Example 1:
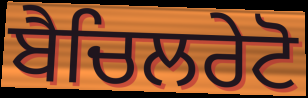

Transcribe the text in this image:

ਬੈਚਿਲਰੇਟੋ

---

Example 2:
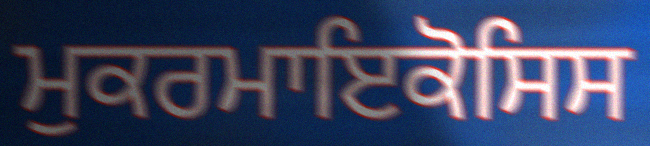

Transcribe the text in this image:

ਮੁਕਰਮਾਇਕੋਸਿਸ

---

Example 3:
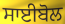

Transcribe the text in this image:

ਸਾਈਬੋਲ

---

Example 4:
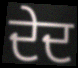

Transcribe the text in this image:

ਦੇਦ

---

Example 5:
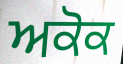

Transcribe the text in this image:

ਅਕੋਕ